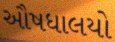
ઔષધાલયો